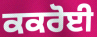
ਕਕਰੋਈ